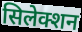
सिलेक्शन